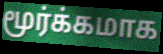
மூர்க்கமாக